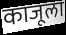
काजूला